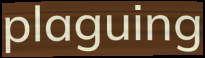
plaguing